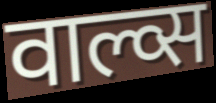
वाल्व्स